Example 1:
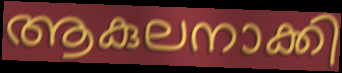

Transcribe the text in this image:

ആകുലനാക്കി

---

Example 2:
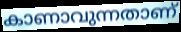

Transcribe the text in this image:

കാണാവുന്നതാണ്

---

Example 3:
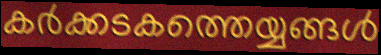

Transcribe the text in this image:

കർക്കടകത്തെയ്യങ്ങൾ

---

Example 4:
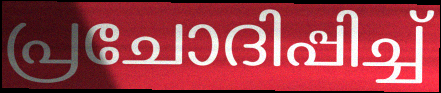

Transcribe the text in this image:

പ്രചോദിപ്പിച്ച്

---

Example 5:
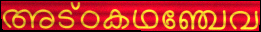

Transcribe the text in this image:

അട്ഠകഥഞ്ചേവ